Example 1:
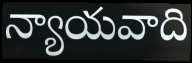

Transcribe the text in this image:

న్యాయవాది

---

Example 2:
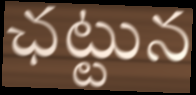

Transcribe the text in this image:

ఛట్టున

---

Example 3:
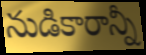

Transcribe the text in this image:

నుడికారాన్నీ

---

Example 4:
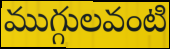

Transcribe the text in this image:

ముగ్గులవంటి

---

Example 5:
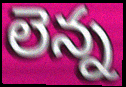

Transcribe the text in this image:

లెన్న